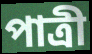
পাত্ৰী